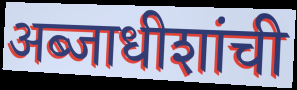
अब्जाधीशांची